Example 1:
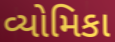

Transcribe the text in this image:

વ્યોમિકા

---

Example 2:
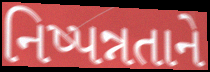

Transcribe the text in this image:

નિષ્પન્નતાને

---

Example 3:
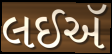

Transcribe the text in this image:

લઈઍ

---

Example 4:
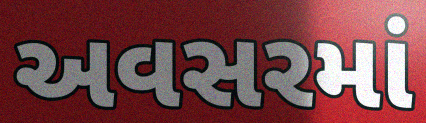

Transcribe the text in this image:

અવસરમાં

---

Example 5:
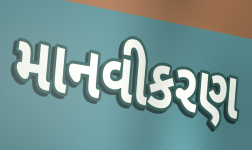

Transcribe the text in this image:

માનવીકરણ